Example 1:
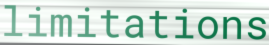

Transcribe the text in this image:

limitations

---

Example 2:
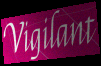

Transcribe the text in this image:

Vigilant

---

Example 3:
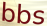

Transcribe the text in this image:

bbs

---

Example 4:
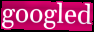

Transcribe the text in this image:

googled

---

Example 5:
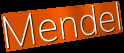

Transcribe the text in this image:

Mendel